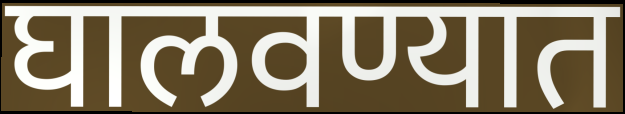
घालवण्यात